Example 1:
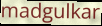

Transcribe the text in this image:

madgulkar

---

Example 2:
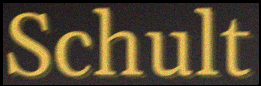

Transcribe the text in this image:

Schult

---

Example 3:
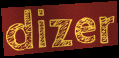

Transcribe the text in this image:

dizer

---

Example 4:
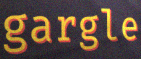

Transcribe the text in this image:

gargle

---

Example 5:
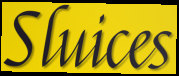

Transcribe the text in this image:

Sluices